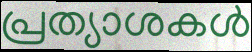
പ്രത്യാശകൾ